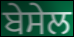
ਬੇਸੇਲ